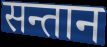
सन्तान